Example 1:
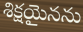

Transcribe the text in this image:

శిక్షయైనను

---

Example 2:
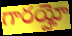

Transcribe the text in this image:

గారయ్హో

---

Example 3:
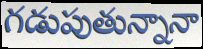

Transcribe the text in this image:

గడుపుతున్నానా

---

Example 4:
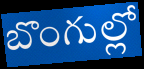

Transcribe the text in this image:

బొంగుల్లో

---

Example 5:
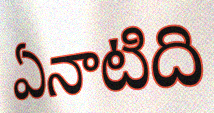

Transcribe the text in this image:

ఏనాటిది